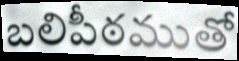
బలిపీఠముతో